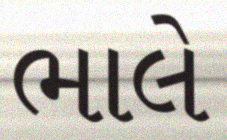
ભાલે